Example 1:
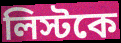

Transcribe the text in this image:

লিস্টকে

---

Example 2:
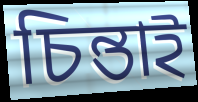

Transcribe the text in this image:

চিন্তাই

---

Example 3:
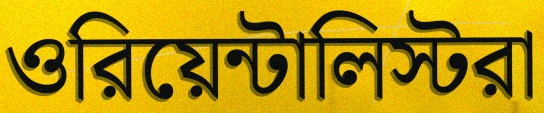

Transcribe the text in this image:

ওরিয়েন্টালিস্টরা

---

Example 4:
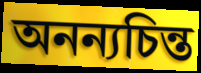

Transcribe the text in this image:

অনন্যচিন্ত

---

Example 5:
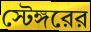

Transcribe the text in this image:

স্টেঙ্গরের